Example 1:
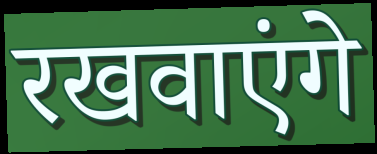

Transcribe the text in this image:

रखवाएंगे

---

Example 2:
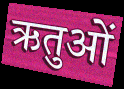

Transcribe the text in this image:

ऋतुओं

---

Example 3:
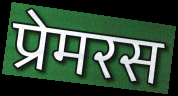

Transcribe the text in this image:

प्रेमरस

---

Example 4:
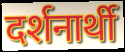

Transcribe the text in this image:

दर्शनार्थी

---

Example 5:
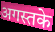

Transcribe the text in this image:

अगस्तके